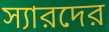
স্যারদের